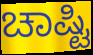
ಚಾಷ್ಟಿ